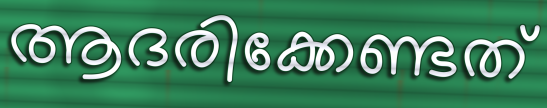
ആദരിക്കേണ്ടത്